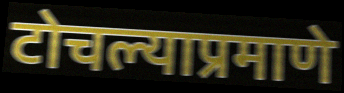
टोचल्याप्रमाणे